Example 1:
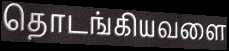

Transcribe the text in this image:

தொடங்கியவளை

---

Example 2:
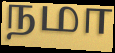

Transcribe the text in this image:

நமா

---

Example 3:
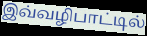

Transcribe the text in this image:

இவ்வழிபாட்டில்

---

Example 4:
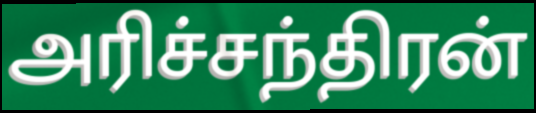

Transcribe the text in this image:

அரிச்சந்திரன்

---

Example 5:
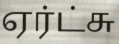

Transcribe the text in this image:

ஏர்ட்சு